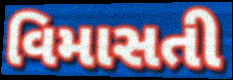
વિમાસતી